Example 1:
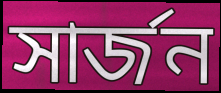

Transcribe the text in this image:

সার্জন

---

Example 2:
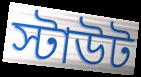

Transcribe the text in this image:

স্টাউট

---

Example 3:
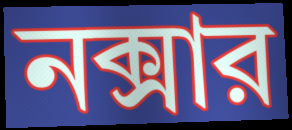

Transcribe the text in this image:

নক্সার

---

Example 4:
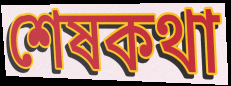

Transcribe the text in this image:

শেষকথা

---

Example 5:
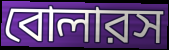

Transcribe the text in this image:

বোলারস